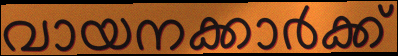
വായനക്കാർക്ക്